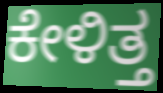
ಕೇಳಿತ್ತ